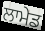
ਲਾਮੇਡ